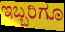
ಇಬ್ಬರಿಗೂ